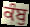
ਕੰਬੁ